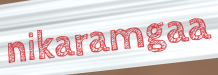
nikaramgaa